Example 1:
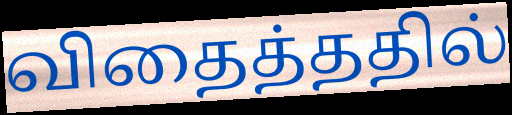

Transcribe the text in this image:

விதைத்ததில்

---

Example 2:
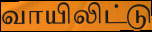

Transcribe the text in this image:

வாயிலிட்டு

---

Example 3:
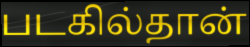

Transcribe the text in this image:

படகில்தான்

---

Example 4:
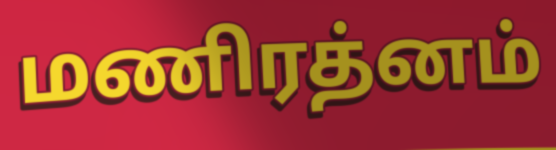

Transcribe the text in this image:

மணிரத்னம்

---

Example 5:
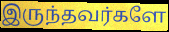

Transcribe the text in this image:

இருந்தவர்களே